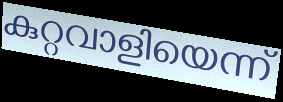
കുറ്റവാളിയെന്ന്